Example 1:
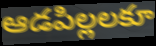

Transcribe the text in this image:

ఆడపిల్లలకూ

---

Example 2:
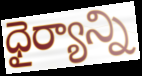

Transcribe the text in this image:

ధైర్యాన్ని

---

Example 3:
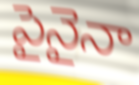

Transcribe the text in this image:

పైనైనా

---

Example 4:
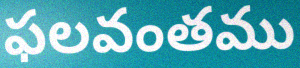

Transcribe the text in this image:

ఫలవంతము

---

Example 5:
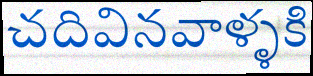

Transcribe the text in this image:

చదివినవాళ్ళకి